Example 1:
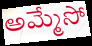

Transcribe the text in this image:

అమ్మేసో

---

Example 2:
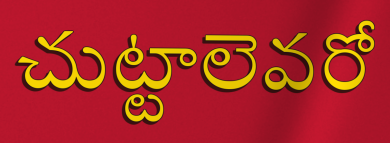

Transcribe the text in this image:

చుట్టాలెవరో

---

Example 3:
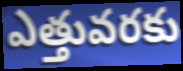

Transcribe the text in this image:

ఎత్తువరకు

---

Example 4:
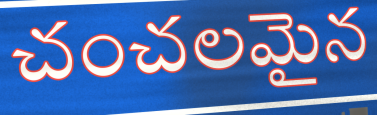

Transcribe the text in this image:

చంచలమైన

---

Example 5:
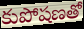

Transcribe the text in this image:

కుపోషణతో